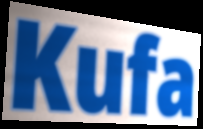
Kufa